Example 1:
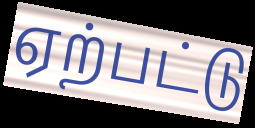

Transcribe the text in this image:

ஏற்பட்டு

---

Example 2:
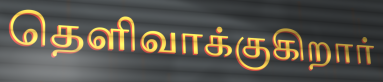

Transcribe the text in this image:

தெளிவாக்குகிறார்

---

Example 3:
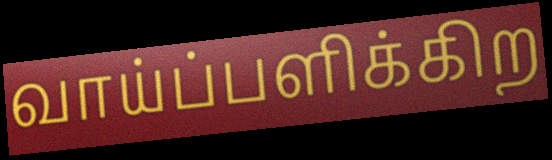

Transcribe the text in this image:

வாய்ப்பளிக்கிற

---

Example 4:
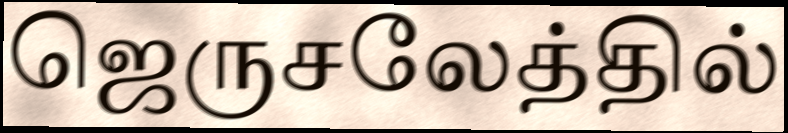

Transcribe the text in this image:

ஜெருசலேத்தில்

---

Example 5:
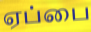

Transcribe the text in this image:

ஏப்பை